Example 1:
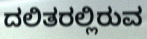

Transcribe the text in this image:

ದಲಿತರಲ್ಲಿರುವ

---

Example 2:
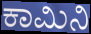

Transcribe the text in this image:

ಕಾಮಿನಿ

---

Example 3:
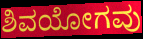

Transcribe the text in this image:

ಶಿವಯೋಗವು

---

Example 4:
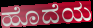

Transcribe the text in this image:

ಹೊದೆಯ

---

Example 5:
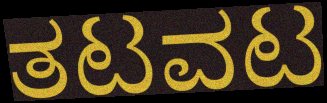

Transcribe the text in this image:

ತಟವಟ